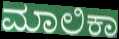
ಮಾಲಿಕಾ